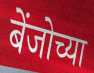
बेंजोच्या